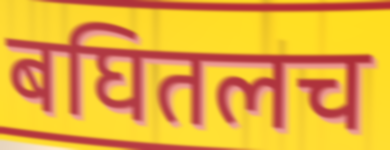
बघितलच